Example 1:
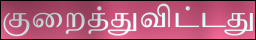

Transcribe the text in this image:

குறைத்துவிட்டது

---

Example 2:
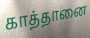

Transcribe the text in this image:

காத்தானை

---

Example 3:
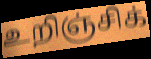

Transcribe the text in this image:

உறிஞ்சிக்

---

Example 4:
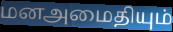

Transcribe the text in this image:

மனஅமைதியும்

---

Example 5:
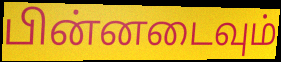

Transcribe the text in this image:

பின்னடைவும்